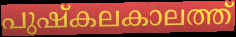
പുഷ്കലകാലത്ത്